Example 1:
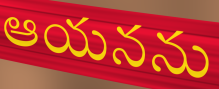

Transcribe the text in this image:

ఆయనను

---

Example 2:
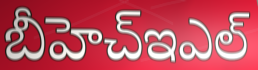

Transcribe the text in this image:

బీహెచ్ఇఎల్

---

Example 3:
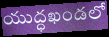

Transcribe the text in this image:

యుద్ధఖండలో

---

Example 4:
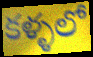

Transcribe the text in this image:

కళ్ళలో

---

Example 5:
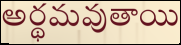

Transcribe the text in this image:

అర్థమవుతాయి